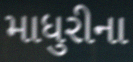
માધુરીના